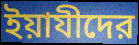
ইয়াযীদের